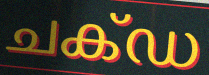
ചക്ഡ